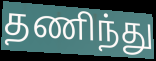
தணிந்து